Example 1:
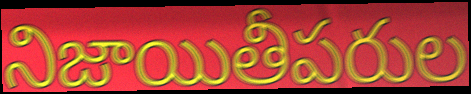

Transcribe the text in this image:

నిజాయితీపరుల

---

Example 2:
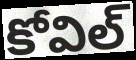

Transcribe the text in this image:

కోవిల్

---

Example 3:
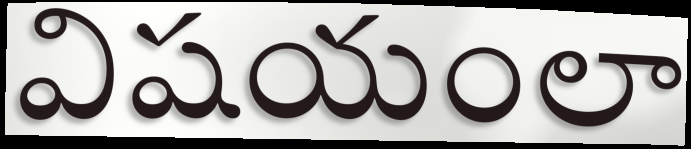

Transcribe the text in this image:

విషయంలా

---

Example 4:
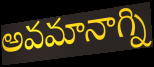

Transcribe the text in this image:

అవమానాగ్ని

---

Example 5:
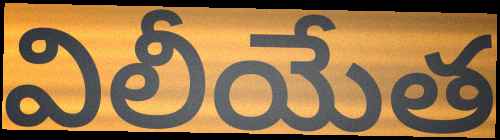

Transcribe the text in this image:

విలీయేత